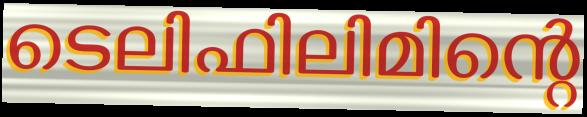
ടെലിഫിലിമിന്റെ